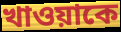
খাওয়াকে